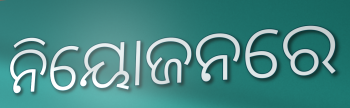
ନିୟୋଜନରେ